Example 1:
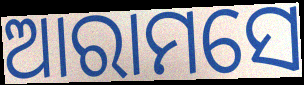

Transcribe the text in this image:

ଆରାମସେ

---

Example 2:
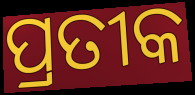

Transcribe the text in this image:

ପ୍ରତୀକ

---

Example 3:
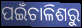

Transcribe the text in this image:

ପଇଁଚାଳିଶରୁ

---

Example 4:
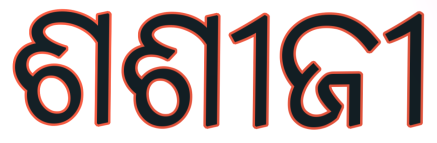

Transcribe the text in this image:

ଶଶୀଜୀ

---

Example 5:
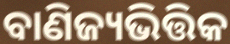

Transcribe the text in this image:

ବାଣିଜ୍ୟଭିତ୍ତିକ